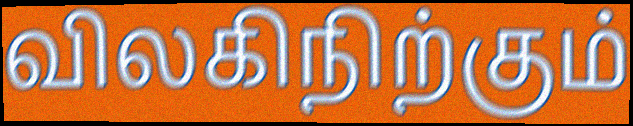
விலகிநிற்கும்